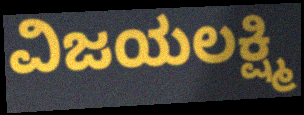
ವಿಜಯಲಕ್ಷ್ಮಿ